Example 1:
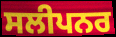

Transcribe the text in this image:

ਸਲੀਪਨਰ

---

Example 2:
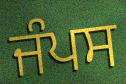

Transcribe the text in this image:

ਜੰਪਸ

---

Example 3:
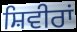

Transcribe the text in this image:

ਸ਼ਿਵੀਰਾਂ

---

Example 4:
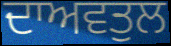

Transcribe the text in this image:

ਦਾਅਵਤੁਲ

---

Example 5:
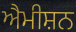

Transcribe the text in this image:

ਐਮੀਸ਼ਨ